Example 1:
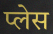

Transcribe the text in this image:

प्लेस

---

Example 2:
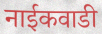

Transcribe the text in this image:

नाईकवाडी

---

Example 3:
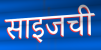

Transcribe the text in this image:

साइजची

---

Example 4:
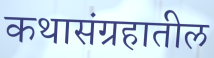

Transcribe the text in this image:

कथासंग्रहातील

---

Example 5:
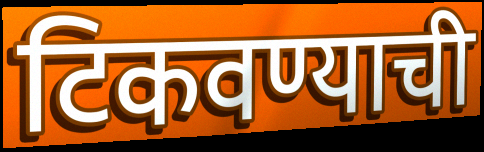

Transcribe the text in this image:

टिकवण्याची